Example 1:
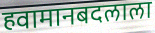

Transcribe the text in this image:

हवामानबदलाला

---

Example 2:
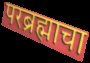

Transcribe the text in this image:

परब्रह्माचा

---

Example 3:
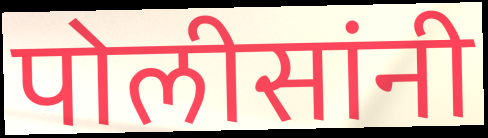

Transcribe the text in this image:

पोलीसांनी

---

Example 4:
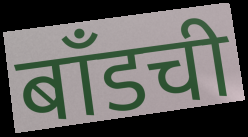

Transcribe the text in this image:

बाँडची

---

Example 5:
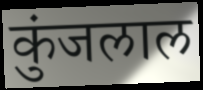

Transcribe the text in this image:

कुंजलाल